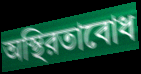
অস্থিরতাবোধ